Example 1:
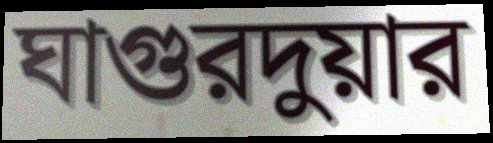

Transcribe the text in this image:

ঘাগুরদুয়ার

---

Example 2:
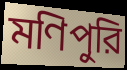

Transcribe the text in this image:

মণিপুরি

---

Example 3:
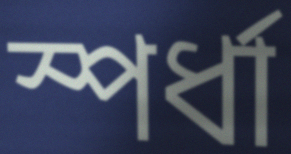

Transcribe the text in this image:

স্পর্ধা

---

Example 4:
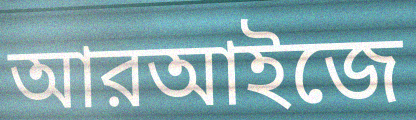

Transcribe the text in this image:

আরআইজে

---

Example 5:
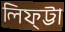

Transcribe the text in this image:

লিফ্ট্টা